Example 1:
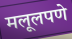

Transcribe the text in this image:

मलूलपणे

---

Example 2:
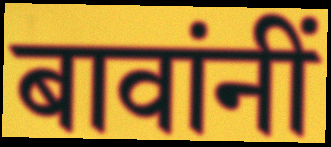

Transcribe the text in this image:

बावांनीं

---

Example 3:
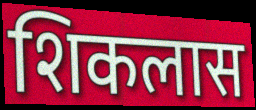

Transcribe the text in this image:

शिकलास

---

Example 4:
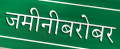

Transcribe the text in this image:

जमीनीबरोबर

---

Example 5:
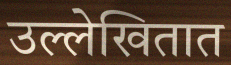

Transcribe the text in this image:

उल्लेखितात